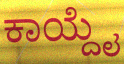
ಕಾಯ್ದೈ